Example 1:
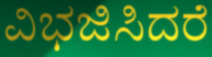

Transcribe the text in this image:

ವಿಭಜಿಸಿದರೆ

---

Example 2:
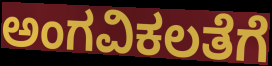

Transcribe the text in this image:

ಅಂಗವಿಕಲತೆಗೆ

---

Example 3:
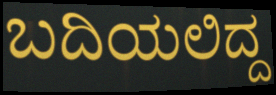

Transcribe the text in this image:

ಬದಿಯಲಿದ್ದ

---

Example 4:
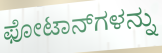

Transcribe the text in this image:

ಫೋಟಾನ್‌ಗಳನ್ನು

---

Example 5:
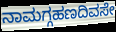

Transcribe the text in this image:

ನಾಮಗ್ಗಹಣದಿವಸೇ